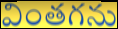
వింతగను